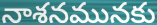
నాశనమునకు